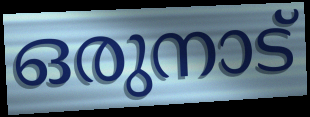
ഒരുനാട്